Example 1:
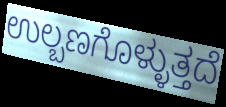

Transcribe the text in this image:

ಉಲ್ಬಣಗೊಳ್ಳುತ್ತದೆ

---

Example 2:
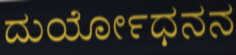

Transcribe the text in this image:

ದುರ್ಯೋಧನನ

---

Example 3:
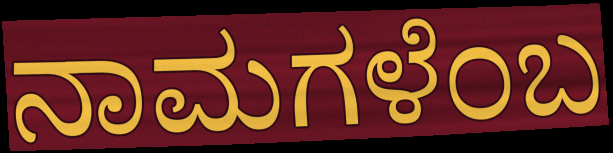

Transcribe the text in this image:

ನಾಮಗಳೆಂಬ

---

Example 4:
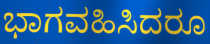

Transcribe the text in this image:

ಭಾಗವಹಿಸಿದರೂ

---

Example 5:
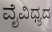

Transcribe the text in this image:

ವೈವಿಧ್ಯದ